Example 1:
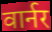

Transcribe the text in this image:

वार्नर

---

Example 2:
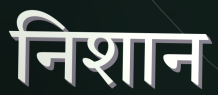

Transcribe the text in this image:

निशान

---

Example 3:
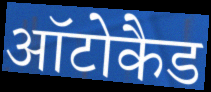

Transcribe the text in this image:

ऑटोकैड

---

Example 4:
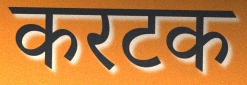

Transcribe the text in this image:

करटक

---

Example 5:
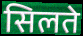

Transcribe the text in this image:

सिलते